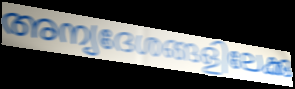
അന്യദേശങ്ങളിലേക്കു